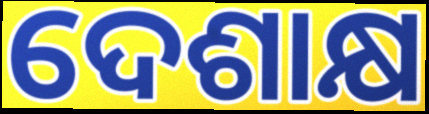
ଦେଶାକ୍ଷ